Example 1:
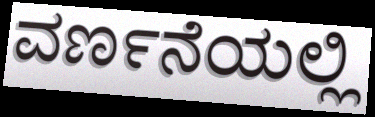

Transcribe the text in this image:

ವರ್ಣನೆಯಲ್ಲಿ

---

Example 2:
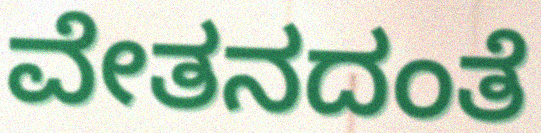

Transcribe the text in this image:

ವೇತನದಂತೆ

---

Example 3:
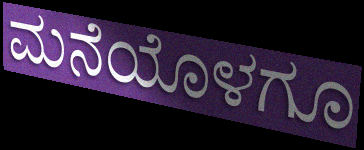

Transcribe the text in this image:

ಮನೆಯೊಳಗೂ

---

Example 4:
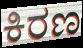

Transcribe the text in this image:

ಕಿರಣ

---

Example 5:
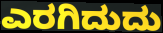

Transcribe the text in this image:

ಎರಗಿದುದು